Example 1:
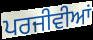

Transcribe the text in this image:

ਪਰਜੀਵੀਆਂ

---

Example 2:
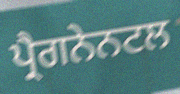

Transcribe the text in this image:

ਪ੍ਰੈਗਨੇਨਟਲ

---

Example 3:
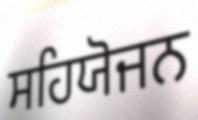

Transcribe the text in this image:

ਸਹਿਯੋਜਨ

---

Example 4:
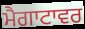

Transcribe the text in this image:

ਮੈਗਾਟਾਵਰ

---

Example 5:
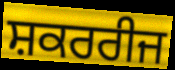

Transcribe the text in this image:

ਸ਼ਕਰਰੀਜ